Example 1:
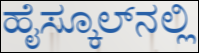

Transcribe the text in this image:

ಹೈಸ್ಕೂಲ್‌ನಲ್ಲಿ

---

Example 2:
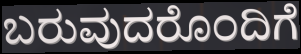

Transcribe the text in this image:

ಬರುವುದರೊಂದಿಗೆ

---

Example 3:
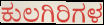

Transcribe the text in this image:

ಕುಲಗಿರಿಗಳ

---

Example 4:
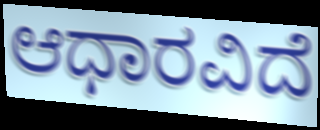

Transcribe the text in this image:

ಆಧಾರವಿದೆ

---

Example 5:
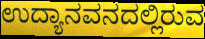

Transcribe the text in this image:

ಉದ್ಯಾನವನದಲ್ಲಿರುವ